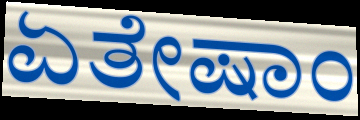
ಏತೇಷಾಂ